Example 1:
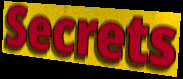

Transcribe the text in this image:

Secrets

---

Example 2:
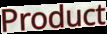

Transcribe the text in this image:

Product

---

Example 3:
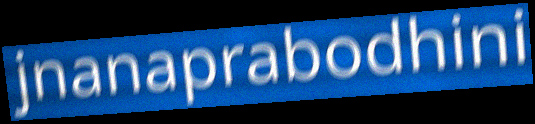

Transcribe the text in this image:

jnanaprabodhini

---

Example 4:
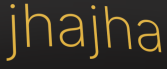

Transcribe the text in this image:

jhajha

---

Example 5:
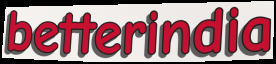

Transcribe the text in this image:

betterindia